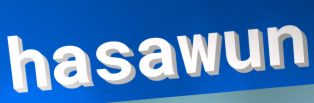
hasawun